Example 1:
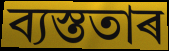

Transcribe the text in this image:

ব্যস্ততাৰ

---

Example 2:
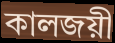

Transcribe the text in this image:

কালজয়ী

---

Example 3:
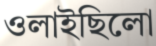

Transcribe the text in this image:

ওলাইছিলো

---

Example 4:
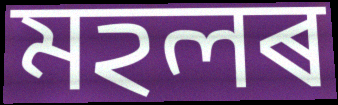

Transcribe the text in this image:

মহলৰ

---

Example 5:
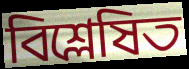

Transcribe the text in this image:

বিশ্লেষিত